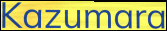
Kazumara